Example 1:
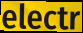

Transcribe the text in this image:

electr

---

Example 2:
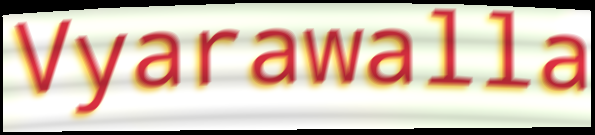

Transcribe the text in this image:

Vyarawalla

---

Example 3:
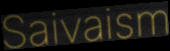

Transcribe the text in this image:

Saivaism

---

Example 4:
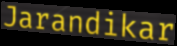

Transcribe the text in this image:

Jarandikar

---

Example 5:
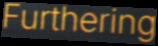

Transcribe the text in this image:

Furthering